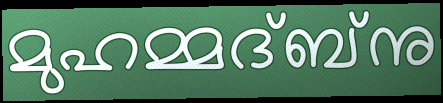
മുഹമ്മദ്ബ്നു